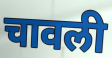
चावली